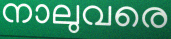
നാലുവരെ